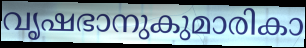
വൃഷഭാനുകുമാരികാ